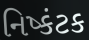
નિષ્કંટક